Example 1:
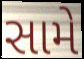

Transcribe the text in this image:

સામે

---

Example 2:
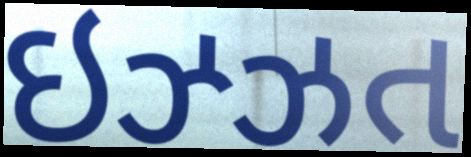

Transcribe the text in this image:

ઇઝ્ઝત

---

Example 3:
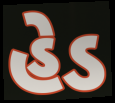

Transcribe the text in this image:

હેડ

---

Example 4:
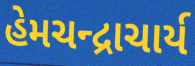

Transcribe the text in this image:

હેમચન્દ્રાચાર્ય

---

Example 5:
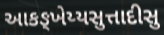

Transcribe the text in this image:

આકઙ્ખેય્યસુત્તાદીસુ